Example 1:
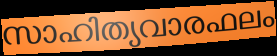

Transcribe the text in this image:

സാഹിത്യവാരഫലം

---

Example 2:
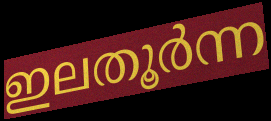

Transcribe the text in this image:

ഇലതൂർന്ന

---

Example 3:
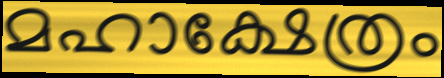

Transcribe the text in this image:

മഹാക്ഷേത്രം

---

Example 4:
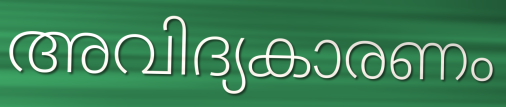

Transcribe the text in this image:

അവിദ്യകാരണം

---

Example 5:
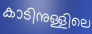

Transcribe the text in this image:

കാടിനുള്ളിലെ